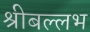
श्रीबल्लभ